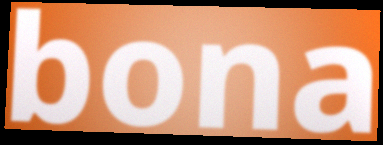
bona